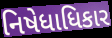
નિષેધાધિકાર